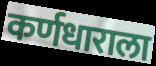
कर्णधाराला